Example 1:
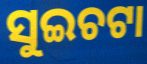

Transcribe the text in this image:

ସୁଇଚଟା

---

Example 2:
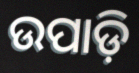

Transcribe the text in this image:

ଉପାଡ଼ି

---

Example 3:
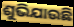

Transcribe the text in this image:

ଶୁଭିଯାଉଛି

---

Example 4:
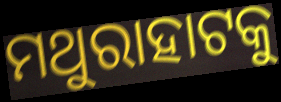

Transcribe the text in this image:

ମଥୁରାହାଟକୁ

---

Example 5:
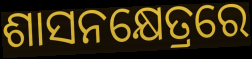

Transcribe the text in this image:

ଶାସନକ୍ଷେତ୍ରରେ